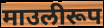
माउलीरूप